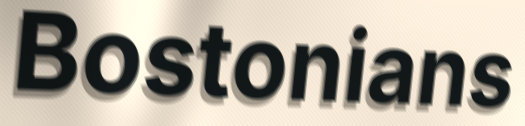
Bostonians